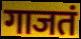
गाजतं